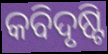
କବିଦୃଷ୍ଟି